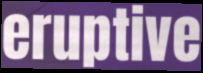
eruptive